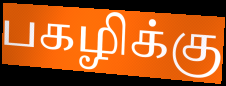
பகழிக்கு